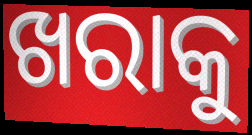
ଖରାକୁ